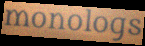
monologs